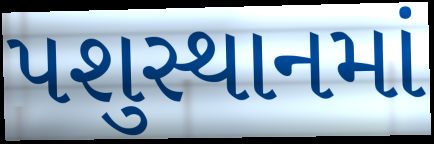
પશુસ્થાનમાં